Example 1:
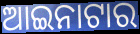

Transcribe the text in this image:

ଆଇନାଟାର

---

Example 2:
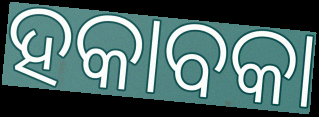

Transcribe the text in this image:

ହକାବକା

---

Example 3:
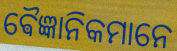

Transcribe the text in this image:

ଵୈଜ୍ଞାନିକମାନେ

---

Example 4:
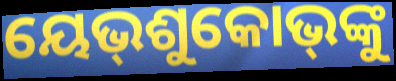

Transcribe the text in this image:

ୟେଭ୍‌ଶୁକୋଭ୍‌ଙ୍କୁ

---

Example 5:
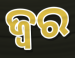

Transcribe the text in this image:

ଜ୍ବର